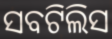
ସବଟିଲିସ